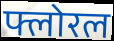
फ्लोरल